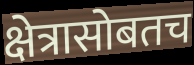
क्षेत्रासोबतच